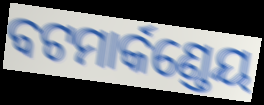
ବଟମାର୍କଣ୍ଡେୟ